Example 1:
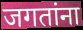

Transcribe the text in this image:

जगतांना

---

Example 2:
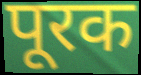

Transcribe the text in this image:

पूरक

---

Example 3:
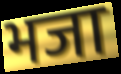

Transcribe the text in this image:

भजा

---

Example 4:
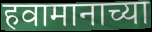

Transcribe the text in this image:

हवामानाच्या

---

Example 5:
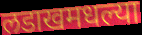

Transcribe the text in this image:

लडाखमधल्या